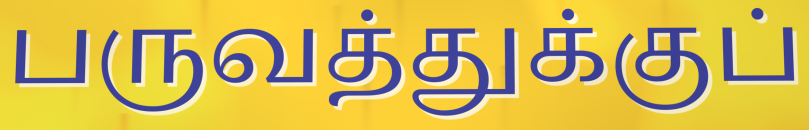
பருவத்துக்குப்